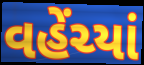
વહેંચ્યાં